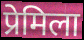
प्रेमिला